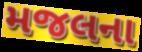
મજલના